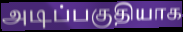
அடிப்பகுதியாக